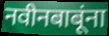
नवीनबाबूंना